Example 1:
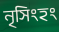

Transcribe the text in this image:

নৃসিংহং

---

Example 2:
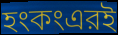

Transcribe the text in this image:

হংকংএরই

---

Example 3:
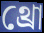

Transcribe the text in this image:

থ্রো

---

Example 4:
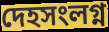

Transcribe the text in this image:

দেহসংলগ্ন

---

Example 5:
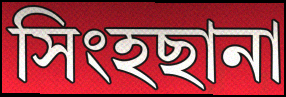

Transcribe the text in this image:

সিংহছানা